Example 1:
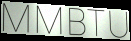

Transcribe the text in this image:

MMBTU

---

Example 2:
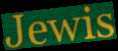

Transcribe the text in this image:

Jewis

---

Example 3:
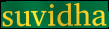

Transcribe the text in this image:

suvidha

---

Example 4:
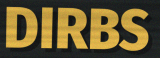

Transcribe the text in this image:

DIRBS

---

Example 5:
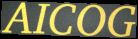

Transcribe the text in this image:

AICOG